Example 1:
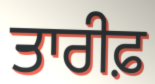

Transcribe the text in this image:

ਤਾਰੀਫ਼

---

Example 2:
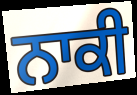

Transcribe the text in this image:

ਨਾਕੀ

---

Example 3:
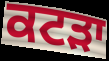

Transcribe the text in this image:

ਕਟੜਾ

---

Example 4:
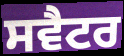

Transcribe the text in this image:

ਸਵੈਟਰ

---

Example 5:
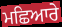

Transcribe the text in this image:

ਮਛਿਆਰੇ